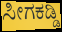
ಸೀಗಕಡ್ಡಿ